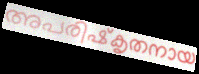
അപരിഷ്‌കൃതനായ